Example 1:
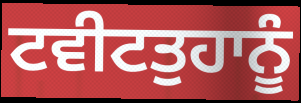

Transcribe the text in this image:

ਟਵੀਟਤੁਹਾਨੂੰ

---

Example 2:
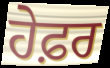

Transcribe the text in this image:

ਹੇਫ਼ਰ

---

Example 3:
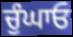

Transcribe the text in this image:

ਚੁੰਘਾਓ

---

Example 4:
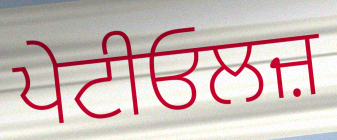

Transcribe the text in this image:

ਪੇਟੀਓਲਜ਼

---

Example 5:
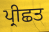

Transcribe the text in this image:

ਪ੍ਰੀਛਤ